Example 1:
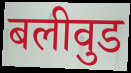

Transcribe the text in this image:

बलीवुड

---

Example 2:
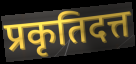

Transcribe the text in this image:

प्रकृतिदत्त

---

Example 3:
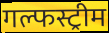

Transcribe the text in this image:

गल्फस्ट्रीम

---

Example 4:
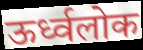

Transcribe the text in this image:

ऊर्ध्वलोक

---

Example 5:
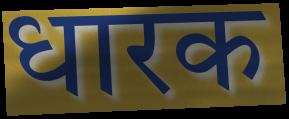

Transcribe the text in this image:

धारक